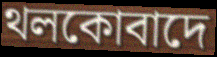
থলকোবাদে